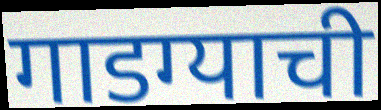
गाडग्याची